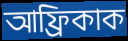
আফ্ৰিকাক